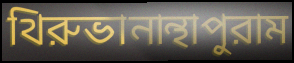
থিরুভানান্থাপুরাম